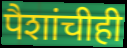
पैशांचीही